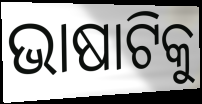
ଭାଷାଟିକୁ